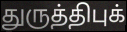
துருத்திபுக்